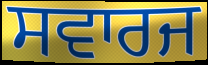
ਸਵਾਰਜ